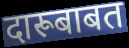
दारूबाबत